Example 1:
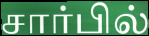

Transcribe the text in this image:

சார்பில்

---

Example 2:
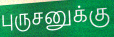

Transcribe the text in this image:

புருசனுக்கு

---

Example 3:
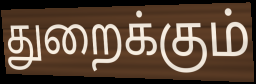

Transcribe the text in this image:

துறைக்கும்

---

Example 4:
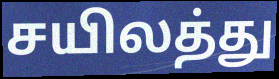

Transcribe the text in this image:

சயிலத்து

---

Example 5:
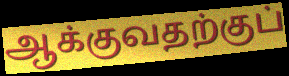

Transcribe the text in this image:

ஆக்குவதற்குப்